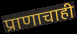
प्राणाचाही